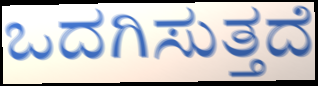
ಒದಗಿಸುತ್ತದೆ